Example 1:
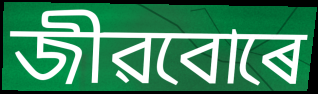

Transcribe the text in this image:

জীৱবোৰে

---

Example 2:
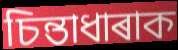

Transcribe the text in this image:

চিন্তাধাৰাক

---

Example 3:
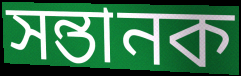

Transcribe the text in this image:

সন্তানক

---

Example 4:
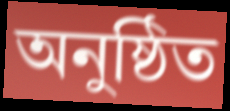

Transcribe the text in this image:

অনুষ্ঠিত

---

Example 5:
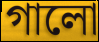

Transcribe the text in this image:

গালো